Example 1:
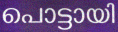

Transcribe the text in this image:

പൊട്ടായി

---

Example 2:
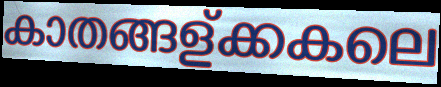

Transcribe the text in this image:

കാതങ്ങള്ക്കകലെ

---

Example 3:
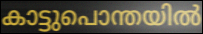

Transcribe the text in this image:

കാട്ടുപൊന്തയിൽ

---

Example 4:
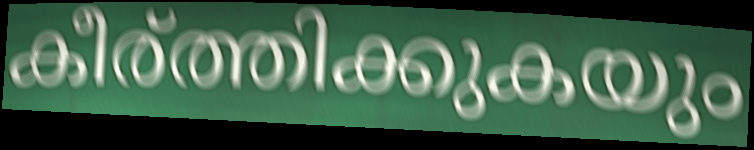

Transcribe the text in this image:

കീര്ത്തിക്കുകയും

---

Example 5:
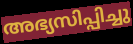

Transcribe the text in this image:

അഭ്യസിപ്പിച്ചു